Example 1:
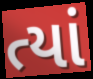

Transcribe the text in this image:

ત્યાં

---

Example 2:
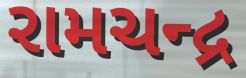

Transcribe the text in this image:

રામચન્દ્ર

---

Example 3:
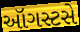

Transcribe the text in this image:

ઑગસ્ટસે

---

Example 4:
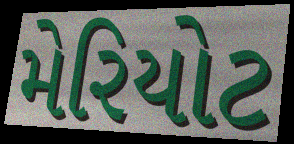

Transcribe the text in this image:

મેરિયોટ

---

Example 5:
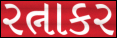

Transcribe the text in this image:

રત્નાકર